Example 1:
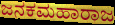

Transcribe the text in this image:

ಜನಕಮಹಾರಾಜ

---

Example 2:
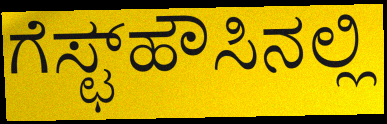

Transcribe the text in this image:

ಗೆಸ್ಟ್‌ಹೌಸಿನಲ್ಲಿ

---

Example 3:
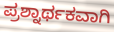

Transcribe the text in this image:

ಪ್ರಶ್ನಾರ್ಥಕವಾಗಿ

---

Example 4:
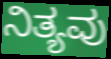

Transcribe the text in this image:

ನಿತ್ಯವು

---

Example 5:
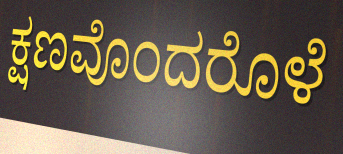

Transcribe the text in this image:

ಕ್ಷಣವೊಂದರೊಳೆ